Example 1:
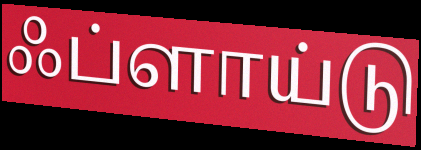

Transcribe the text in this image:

ஃப்ளாய்டு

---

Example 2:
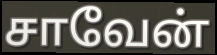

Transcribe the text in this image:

சாவேன்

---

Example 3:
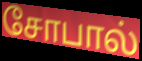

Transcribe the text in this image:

சோபால்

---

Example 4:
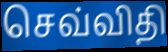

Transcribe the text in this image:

செவ்விதி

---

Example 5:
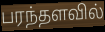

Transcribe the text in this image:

பரந்தளவில்